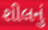
શીલનું